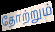
தோற்றும்